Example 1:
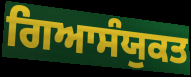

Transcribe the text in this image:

ਗਿਆਸੰਯੁਕਤ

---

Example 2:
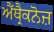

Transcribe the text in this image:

ਐਂਥ੍ਰੈਕਨੋਜ਼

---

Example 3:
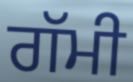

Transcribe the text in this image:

ਗੱਮੀ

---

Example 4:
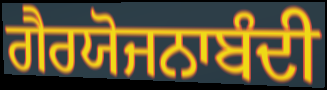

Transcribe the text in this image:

ਗੈਰਯੋਜਨਾਬੰਦੀ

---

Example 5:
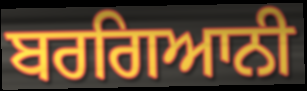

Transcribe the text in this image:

ਬਰਗਿਆਨੀ